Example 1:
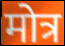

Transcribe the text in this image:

मोत्र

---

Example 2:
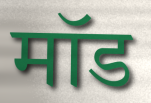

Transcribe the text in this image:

मॉड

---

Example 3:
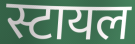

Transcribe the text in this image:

स्टायल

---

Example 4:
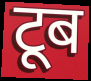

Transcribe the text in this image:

टूब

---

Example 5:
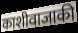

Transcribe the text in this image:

काशीवाजाकी